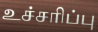
உச்சரிப்பு